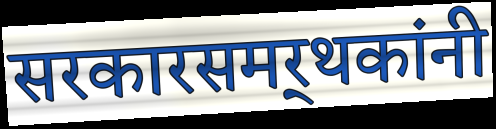
सरकारसमर्थकांनी